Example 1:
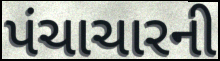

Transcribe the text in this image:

પંચાચારની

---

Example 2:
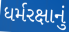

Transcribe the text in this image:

ધર્મરક્ષાનું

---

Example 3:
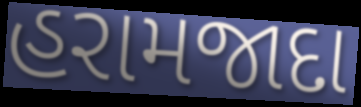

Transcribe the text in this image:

હરામજાદા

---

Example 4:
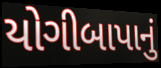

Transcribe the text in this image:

યોગીબાપાનું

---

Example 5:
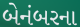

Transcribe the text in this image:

બેનંબરના